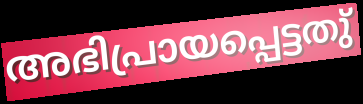
അഭിപ്രായപ്പെട്ടതു്